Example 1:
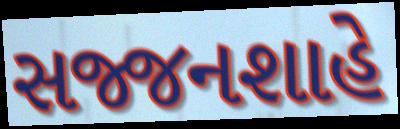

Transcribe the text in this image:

સજ્જનશાહે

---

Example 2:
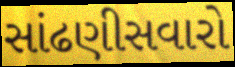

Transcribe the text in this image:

સાંઢણીસવારો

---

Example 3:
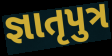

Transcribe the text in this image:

જ્ઞાતૃપુત્ર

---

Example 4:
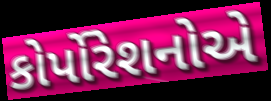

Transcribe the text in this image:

કોર્પોરેશનોએ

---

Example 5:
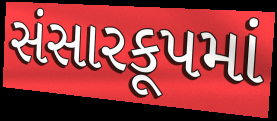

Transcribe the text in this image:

સંસારકૂપમાં